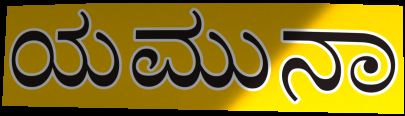
ಯಮುನಾ